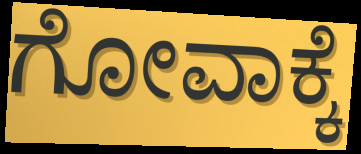
ಗೋವಾಕ್ಕೆ